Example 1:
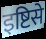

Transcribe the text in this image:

इष्टिसे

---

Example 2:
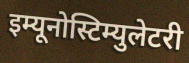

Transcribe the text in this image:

इम्यूनोस्टिम्युलेटरी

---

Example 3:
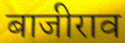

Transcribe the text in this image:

बाजीराव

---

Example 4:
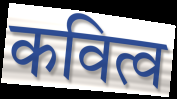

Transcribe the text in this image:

कवित्व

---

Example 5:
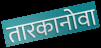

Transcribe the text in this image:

तारकानोवा